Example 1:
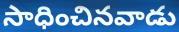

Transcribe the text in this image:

సాధించినవాడు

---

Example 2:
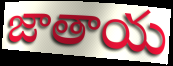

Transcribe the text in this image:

జాతాయ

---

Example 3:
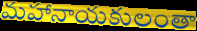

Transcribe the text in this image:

మహానాయకులంతా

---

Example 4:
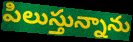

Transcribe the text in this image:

పిలుస్తున్నాను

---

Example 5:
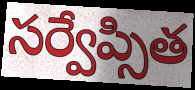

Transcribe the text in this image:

సర్వేప్సిత